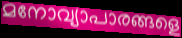
മനോവ്യാപാരങ്ങളെ